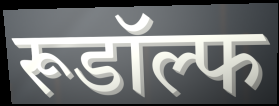
रूडॉल्फ